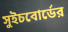
সুইচবোর্ডের